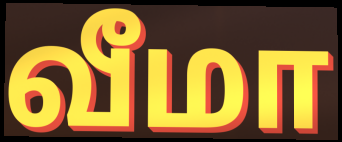
வீமா